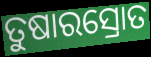
ତୁଷାରସ୍ରୋତ